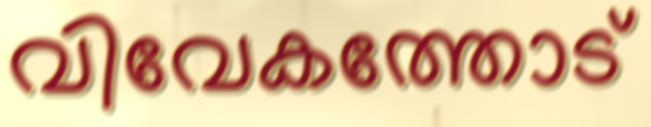
വിവേകത്തോട്